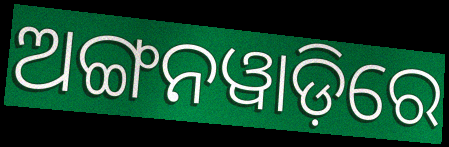
ଅଙ୍ଗନୱାଡ଼ିରେ